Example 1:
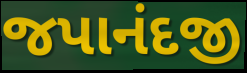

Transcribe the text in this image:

જપાનંદજી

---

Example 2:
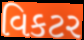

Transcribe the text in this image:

વિકટર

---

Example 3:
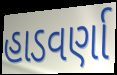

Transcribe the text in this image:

હાડવર્ણા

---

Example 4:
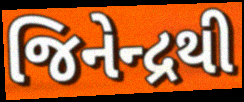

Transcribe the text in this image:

જિનેન્દ્રથી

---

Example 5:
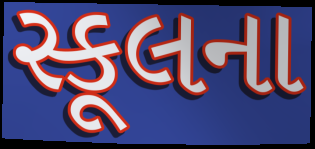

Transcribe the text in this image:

સ્કૂલના